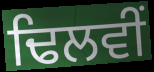
ਢਿਲਵੀਂ